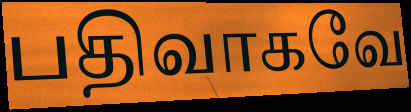
பதிவாகவே